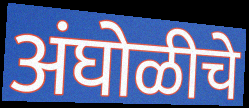
अंघोळीचे